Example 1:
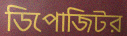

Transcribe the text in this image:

ডিপোজিটর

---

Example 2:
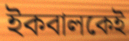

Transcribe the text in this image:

ইকবালকেই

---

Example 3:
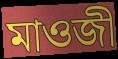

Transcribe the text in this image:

মাওজী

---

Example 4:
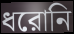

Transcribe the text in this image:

ধরোনি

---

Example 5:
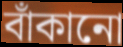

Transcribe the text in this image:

বাঁকানো